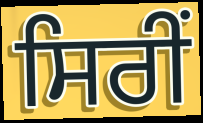
ਸਿਰੀਂ